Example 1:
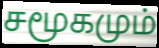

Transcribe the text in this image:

சமூகமும்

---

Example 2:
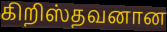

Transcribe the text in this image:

கிறிஸ்தவனான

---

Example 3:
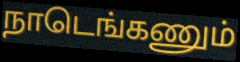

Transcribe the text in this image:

நாடெங்கணும்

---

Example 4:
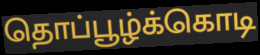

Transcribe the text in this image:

தொப்பூழ்க்கொடி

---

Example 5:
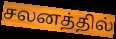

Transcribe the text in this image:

சலனத்தில்